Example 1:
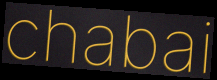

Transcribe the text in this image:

chabai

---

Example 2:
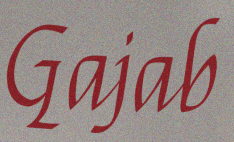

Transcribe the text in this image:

Gajab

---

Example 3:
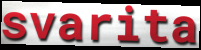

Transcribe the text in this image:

svarita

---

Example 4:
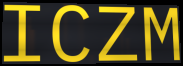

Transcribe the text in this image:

ICZM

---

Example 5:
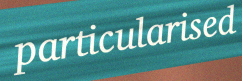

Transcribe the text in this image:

particularised